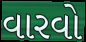
વારવો